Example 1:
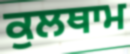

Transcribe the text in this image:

ਕੁਲਥਾਮ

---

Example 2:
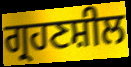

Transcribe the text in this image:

ਗ੍ਰਹਣਸ਼ੀਲ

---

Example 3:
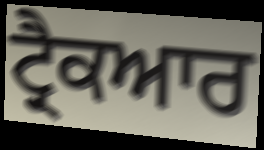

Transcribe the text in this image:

ਟ੍ਰੈਕਆਰ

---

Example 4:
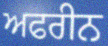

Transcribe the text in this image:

ਅਫਰੀਨ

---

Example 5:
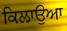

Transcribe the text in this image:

ਕਿਲਾਉਆ